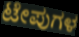
ಟೇಪುಗಳ